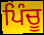
ਪਿੰਚੂ